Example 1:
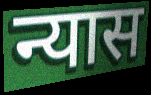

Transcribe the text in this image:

न्यास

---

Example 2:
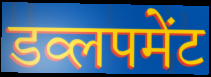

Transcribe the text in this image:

डव्लपमेंट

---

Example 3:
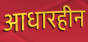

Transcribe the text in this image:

आधारहीन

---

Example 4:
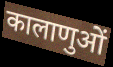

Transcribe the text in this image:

कालाणुओं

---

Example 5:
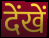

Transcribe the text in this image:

देंखें